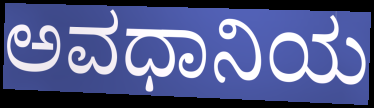
ಅವಧಾನಿಯ